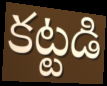
కట్టడి